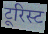
टूरिस्ट